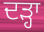
ਦੜ੍ਹਾ